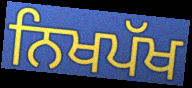
ਨਿਖਪੱਖ